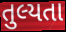
તુલ્યતા